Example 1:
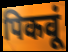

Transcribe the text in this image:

पिकवूं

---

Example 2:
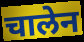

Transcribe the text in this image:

चालेन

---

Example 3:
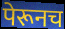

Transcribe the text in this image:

पेरूनच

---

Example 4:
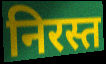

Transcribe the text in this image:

निरस्त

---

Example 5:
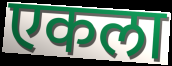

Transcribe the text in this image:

एकला